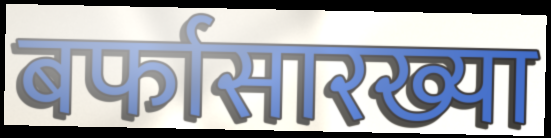
बर्फासारख्या